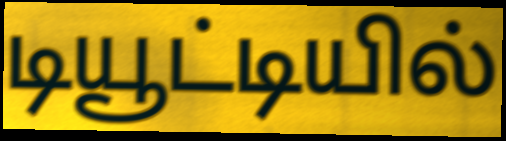
டியூட்டியில்